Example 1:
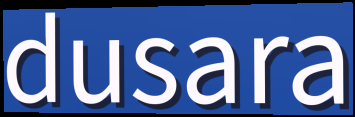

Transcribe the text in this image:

dusara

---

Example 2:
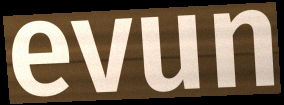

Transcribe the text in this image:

evun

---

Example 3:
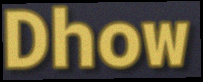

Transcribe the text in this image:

Dhow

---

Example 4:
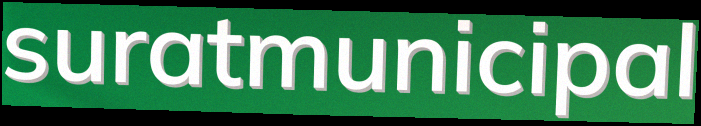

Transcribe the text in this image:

suratmunicipal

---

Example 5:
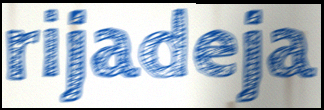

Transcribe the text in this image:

rijadeja